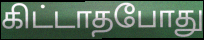
கிட்டாதபோது